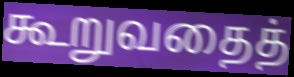
கூறுவதைத்